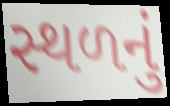
સ્થળનું